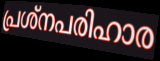
പ്രശ്നപരിഹാര